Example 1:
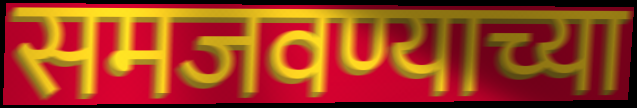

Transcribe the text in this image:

समजवण्याच्या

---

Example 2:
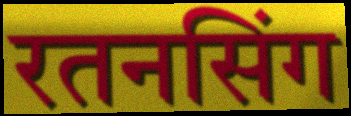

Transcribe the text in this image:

रतनसिंग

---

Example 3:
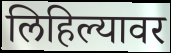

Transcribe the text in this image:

लिहिल्यावर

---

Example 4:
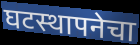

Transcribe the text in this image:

घटस्थापनेचा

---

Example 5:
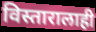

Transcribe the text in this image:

विस्तारालाही